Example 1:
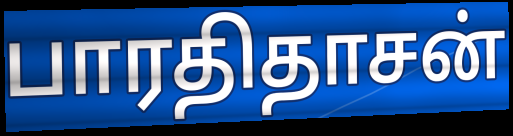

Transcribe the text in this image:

பாரதிதாசன்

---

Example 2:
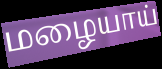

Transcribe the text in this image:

மழையாய்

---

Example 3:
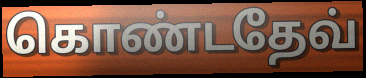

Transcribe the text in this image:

கொண்டதேவ்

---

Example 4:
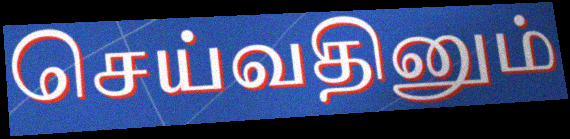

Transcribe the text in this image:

செய்வதினும்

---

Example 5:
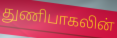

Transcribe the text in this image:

துணிபாகலின்